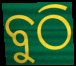
ବୁଠି